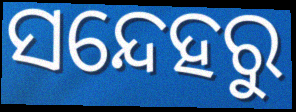
ସନ୍ଦେହରୁ